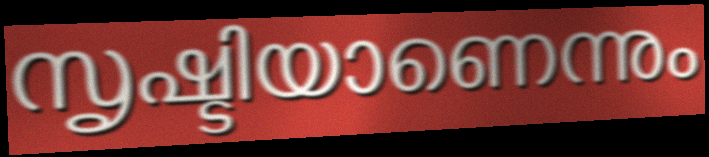
സൃഷ്ടിയാണെന്നും